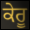
ਕੇਰੂ